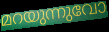
മറയുന്നുവോ